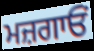
ਮਜ਼ਗਾਓਂ